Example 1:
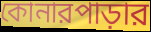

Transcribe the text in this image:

কোনারপাড়ার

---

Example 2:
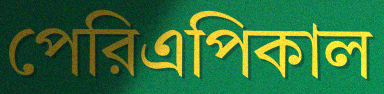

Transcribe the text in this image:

পেরিএপিকাল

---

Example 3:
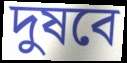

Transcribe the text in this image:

দুষবে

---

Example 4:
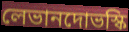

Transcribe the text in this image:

লেভানদোভস্কি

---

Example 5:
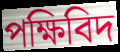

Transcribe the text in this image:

পক্ষিবিদ